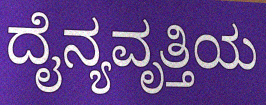
ದೈನ್ಯವೃತ್ತಿಯ